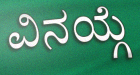
ವಿನಯ್ಗೆ